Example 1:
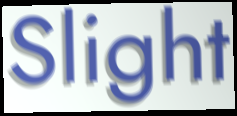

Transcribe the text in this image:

Slight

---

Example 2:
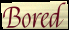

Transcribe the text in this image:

Bored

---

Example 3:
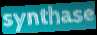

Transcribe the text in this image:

synthase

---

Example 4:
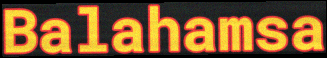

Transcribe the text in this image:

Balahamsa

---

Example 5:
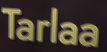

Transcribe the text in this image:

Tarlaa